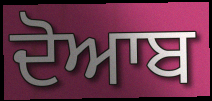
ਦੋਆਬ